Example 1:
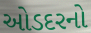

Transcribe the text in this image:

ઓડદરનો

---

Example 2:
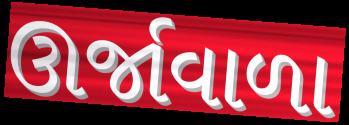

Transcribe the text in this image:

ઊર્જાવાળા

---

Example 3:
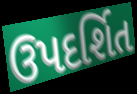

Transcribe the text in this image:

ઉપદર્શિત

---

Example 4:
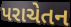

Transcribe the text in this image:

પરાચેતન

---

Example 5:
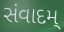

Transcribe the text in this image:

સંવાદમ્